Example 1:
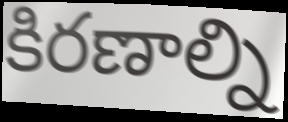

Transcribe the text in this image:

కిరణాల్ని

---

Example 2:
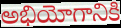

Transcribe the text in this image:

అభియోగానికి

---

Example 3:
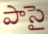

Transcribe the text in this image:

పాసై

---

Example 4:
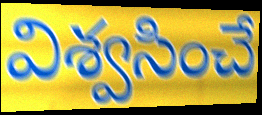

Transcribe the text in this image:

విశ్వసించే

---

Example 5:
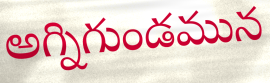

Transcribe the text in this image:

అగ్నిగుండమున